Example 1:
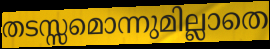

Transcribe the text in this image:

തടസ്സമൊന്നുമില്ലാതെ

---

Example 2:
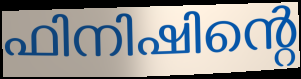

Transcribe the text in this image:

ഫിനിഷിന്റെ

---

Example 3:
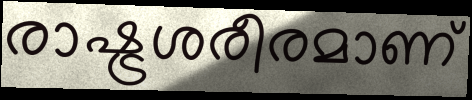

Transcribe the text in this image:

രാഷ്ട്രശരീരമാണ്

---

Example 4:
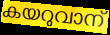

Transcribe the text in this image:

കയറുവാന്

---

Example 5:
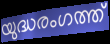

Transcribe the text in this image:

യുദ്ധരംഗത്ത്